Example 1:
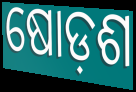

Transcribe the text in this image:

ଷୋଡ଼ଶ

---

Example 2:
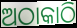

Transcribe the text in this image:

ଅଠାକାଠି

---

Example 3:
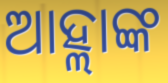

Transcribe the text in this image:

ଆହ୍ଲାଙ୍କ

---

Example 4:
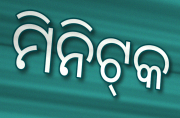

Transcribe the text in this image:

ମିନିଟ୍‍କ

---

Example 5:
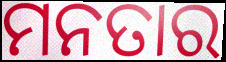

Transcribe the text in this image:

ମନତାର